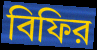
বিফির